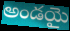
అండయై